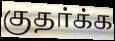
குதர்க்க